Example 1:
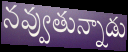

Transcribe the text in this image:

నవ్వుతున్నాడు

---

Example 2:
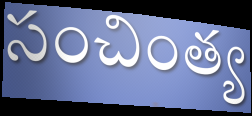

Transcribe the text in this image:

సంచింత్య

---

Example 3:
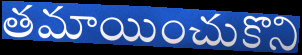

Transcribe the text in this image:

తమాయించుకొని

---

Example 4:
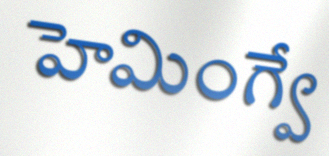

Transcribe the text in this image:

హెమింగ్వే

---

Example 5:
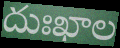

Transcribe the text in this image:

దుఃఖాల